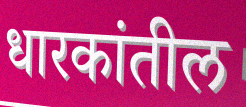
धारकांतील